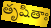
తృషితాః